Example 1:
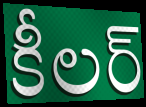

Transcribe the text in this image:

కీలర్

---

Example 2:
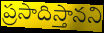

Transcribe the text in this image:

ప్రసాదిస్తానని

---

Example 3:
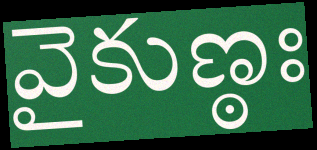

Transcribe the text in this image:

వైకుణ్ఠః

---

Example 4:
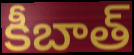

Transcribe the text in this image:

కీబాత్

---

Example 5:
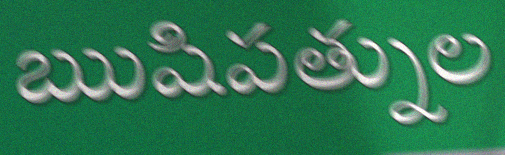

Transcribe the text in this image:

ఋషిపత్నుల